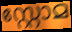
സ്റ്റോമ